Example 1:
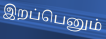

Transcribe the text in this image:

இறப்பெனும்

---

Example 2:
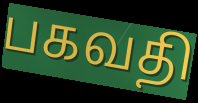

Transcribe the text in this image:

பகவதி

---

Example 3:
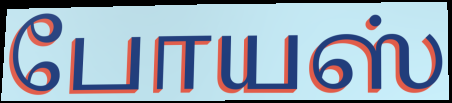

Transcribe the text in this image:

போயஸ்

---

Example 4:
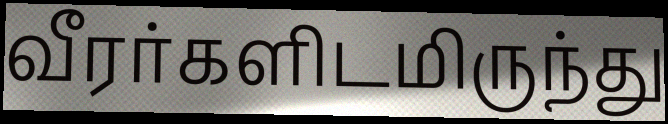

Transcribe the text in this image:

வீரர்களிடமிருந்து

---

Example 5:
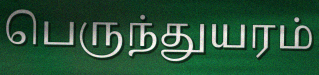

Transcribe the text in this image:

பெருந்துயரம்